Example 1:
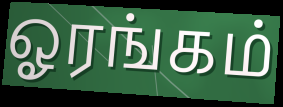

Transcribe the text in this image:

ஓரங்கம்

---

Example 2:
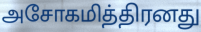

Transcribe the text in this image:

அசோகமித்திரனது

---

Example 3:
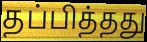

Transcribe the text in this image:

தப்பித்தது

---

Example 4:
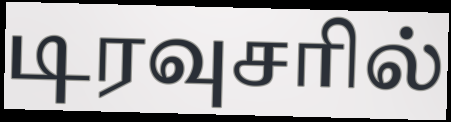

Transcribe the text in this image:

டிரவுசரில்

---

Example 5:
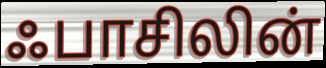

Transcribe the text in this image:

ஃபாசிலின்